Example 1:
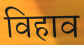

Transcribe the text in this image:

विहाव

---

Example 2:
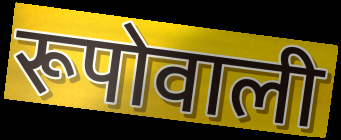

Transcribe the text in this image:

रूपोवाली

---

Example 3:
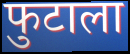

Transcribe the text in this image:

फुटाला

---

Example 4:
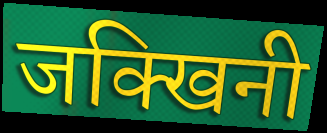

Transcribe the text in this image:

जक्खिनी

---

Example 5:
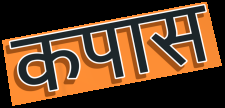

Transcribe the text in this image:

कपास